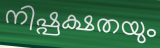
നിഷ്പക്ഷതയും